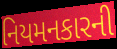
નિયમનકારની